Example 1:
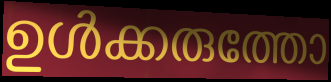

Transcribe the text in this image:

ഉൾക്കരുത്തോ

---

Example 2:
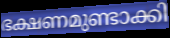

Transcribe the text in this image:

ഭക്ഷണമുണ്ടാക്കി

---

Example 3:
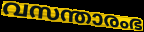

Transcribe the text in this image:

വസന്താരംഭ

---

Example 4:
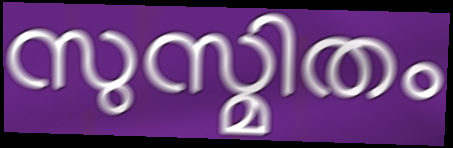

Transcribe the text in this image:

സുസ്മിതം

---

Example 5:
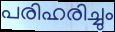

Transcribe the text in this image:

പരിഹരിച്ചും